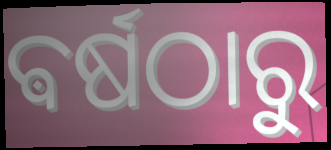
ଵର୍ଷଠାରୁ